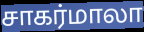
சாகர்மாலா